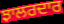
ਝਾਲਰਦਾਰ